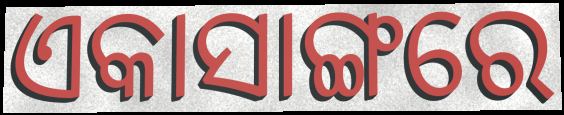
ଏକାସାଙ୍ଗରେ